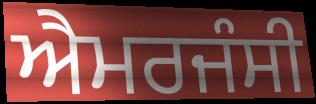
ਐਮਰਜੰਸੀ